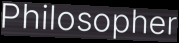
Philosopher